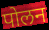
पोलन